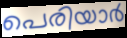
പെരിയാർ